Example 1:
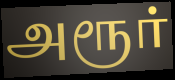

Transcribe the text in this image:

அரூர்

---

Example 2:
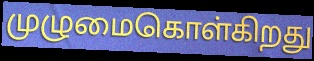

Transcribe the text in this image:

முழுமைகொள்கிறது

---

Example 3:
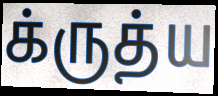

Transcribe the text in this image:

க்ருத்ய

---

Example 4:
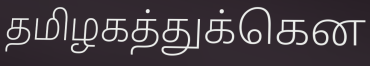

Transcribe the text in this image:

தமிழகத்துக்கென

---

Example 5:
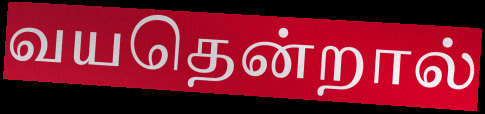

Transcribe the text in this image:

வயதென்றால்